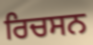
ਰਿਚਸਨ